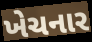
ખેચનાર